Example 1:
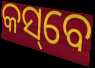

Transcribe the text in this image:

କସ୍‌ବେ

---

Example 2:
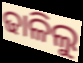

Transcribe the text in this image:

ଢାଳିଲୁ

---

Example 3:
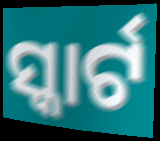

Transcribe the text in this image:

ସ୍କାର୍ଟ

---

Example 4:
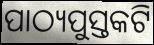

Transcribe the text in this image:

ପାଠ୍ୟପୁସ୍ତକଟି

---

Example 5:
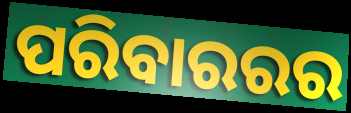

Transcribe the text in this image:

ପରିବାରରର